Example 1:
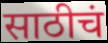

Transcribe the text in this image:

साठीचं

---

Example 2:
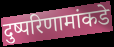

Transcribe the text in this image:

दुष्परिणामांकडे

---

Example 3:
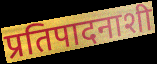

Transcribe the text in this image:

प्रतिपादनाशी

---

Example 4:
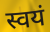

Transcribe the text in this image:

स्वयं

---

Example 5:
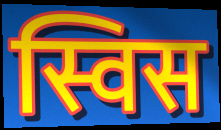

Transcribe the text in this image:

स्विस